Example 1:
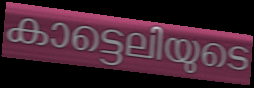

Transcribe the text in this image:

കാട്ടെലിയുടെ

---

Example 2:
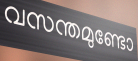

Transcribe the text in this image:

വസന്തമുണ്ടോ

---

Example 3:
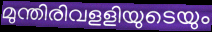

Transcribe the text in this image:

മുന്തിരിവളളിയുടെയും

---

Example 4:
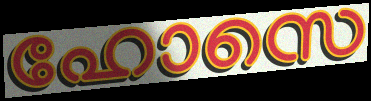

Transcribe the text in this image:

ഹോസെ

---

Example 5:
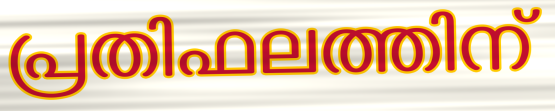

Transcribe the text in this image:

പ്രതിഫലത്തിന്